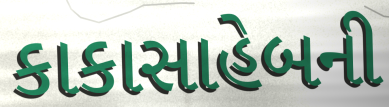
કાકાસાહેબની